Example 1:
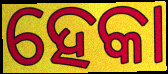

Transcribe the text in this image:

ହେକା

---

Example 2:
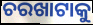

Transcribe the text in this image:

ଚରଖାଟାକୁ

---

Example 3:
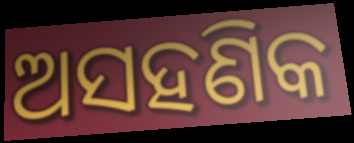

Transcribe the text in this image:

ଅସହଣିକ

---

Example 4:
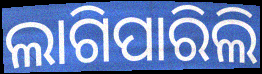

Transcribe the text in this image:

ଲାଗିପାରିଲି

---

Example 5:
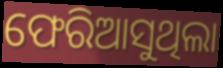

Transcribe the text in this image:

ଫେରିଆସୁଥିଲା